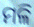
ମଳି